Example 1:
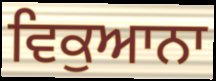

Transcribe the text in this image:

ਵਿਕੁਆਨਾ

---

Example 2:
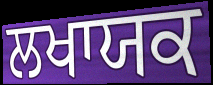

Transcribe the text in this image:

ਲਖਾਯਕ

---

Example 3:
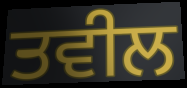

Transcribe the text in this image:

ਤਵੀਲ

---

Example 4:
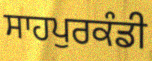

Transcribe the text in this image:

ਸਾਹਪੁਰਕੰਡੀ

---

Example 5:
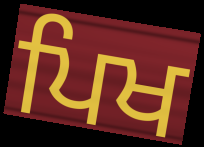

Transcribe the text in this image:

ਪਿਖ